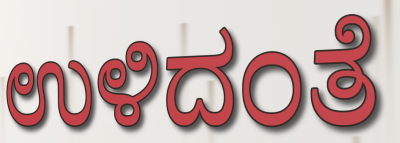
ಉಳಿದಂತೆ